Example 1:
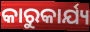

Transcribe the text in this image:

କାରୁକାର୍ଯ୍ୟ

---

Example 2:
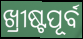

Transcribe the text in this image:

ଖ୍ରୀଷ୍ଟପୂର୍ବ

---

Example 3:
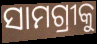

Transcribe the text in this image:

ସାମଗ୍ରୀକୁ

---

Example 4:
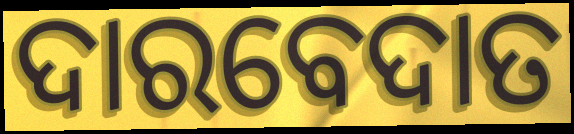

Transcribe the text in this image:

ଦାରବେଦାତ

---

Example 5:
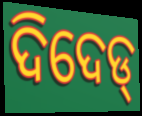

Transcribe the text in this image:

ଦିଦେଡ୍